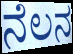
ನೆಲನ